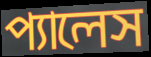
প্যালেস